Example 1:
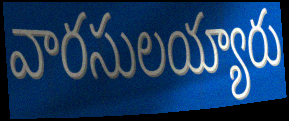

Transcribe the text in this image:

వారసులయ్యారు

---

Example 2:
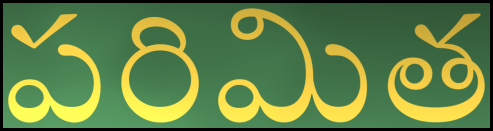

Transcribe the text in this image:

పరిమిత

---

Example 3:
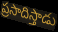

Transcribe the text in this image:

ప్రసాదిస్తాడు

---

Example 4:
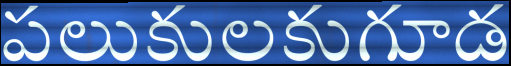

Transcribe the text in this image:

పలుకులకుగూడ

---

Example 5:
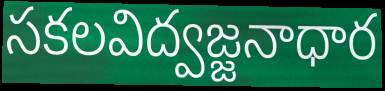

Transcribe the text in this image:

సకలవిద్వజ్జనాధార